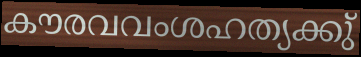
കൗരവവംശഹത്യക്കു്